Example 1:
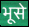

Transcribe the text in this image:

भूसे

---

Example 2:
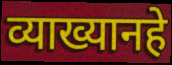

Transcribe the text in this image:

व्याख्यानहे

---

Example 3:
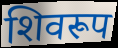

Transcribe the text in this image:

शिवरूप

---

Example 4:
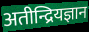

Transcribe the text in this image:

अतीन्द्रियज्ञान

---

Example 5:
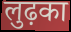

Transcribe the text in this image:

लुढ़का